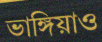
ভাঙ্গিয়াও